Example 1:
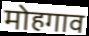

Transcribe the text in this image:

मोहगाव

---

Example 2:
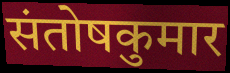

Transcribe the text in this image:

संतोषकुमार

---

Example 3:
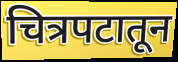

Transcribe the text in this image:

चित्रपटातून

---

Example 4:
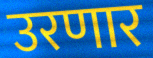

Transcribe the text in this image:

उरणार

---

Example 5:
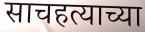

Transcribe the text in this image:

साचहत्याच्या